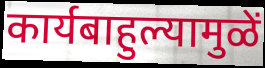
कार्यबाहुल्यामुळें